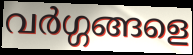
വർഗ്ഗങ്ങളെ